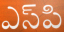
ఎస్‌పి